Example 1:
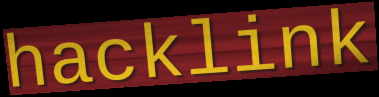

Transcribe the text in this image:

hacklink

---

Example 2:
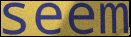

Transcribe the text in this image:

seem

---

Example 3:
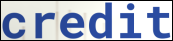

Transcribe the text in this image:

credit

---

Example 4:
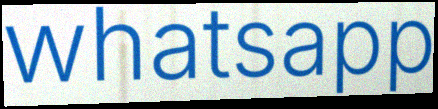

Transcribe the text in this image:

whatsapp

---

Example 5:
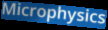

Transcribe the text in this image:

Microphysics